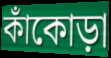
কাঁকোড়া